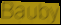
Bauby